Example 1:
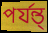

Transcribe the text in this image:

পর্যন্ত্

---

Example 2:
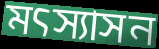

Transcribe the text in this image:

মৎস্যাসন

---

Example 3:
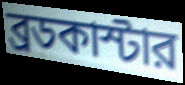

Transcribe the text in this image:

ব্রডকাস্টার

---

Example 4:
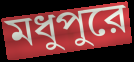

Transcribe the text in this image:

মধুপুরে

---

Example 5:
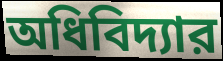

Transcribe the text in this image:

অধিবিদ্যার